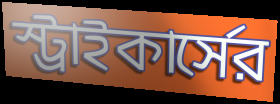
স্ট্রাইকার্সের